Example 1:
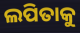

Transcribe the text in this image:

ଲପିତାକୁ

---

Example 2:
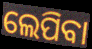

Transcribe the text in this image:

ଲେପିବା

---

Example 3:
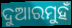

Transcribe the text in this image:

ଦୁଆରମୁହଁ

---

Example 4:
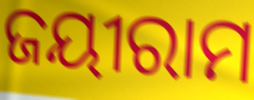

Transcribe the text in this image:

ଜୟୀରାମ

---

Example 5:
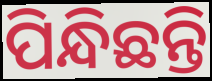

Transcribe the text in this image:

ପିନ୍ଧିଛନ୍ତି